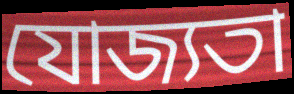
যোজ্যতা